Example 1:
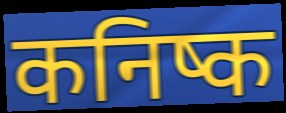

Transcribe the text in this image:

कनिष्क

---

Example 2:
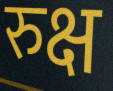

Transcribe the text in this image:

रुक्ष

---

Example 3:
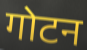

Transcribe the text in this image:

गोटन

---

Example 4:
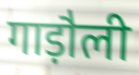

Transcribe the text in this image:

गाड़ौली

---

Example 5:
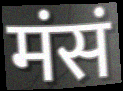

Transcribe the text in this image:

मंसं